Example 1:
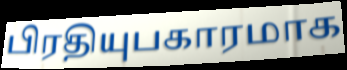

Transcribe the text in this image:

பிரதியுபகாரமாக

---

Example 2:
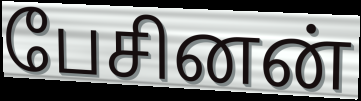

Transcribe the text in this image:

பேசினன்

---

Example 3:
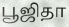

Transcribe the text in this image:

பூஜிதா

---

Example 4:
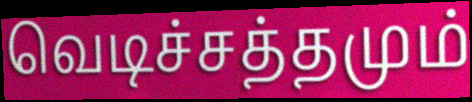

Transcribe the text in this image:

வெடிச்சத்தமும்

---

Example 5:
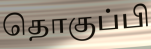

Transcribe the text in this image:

தொகுப்பி